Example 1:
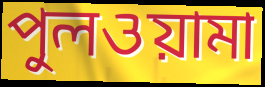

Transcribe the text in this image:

পুলওয়ামা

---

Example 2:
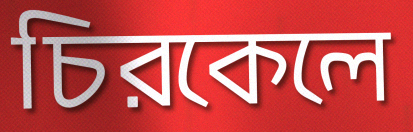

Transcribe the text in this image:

চিরকেলে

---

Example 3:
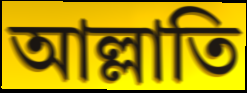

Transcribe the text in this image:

আল্লাতি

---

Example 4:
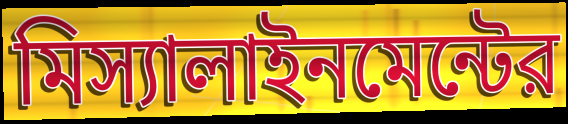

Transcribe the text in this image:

মিস্যালাইনমেন্টের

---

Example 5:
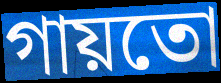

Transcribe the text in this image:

গায়তো